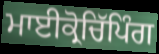
ਮਾਈਕ੍ਰੋਚਿੱਪਿੰਗ